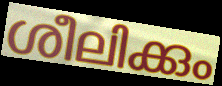
ശീലിക്കും